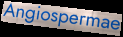
Angiospermae